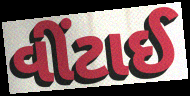
વીંટાઈ